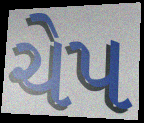
ચેપ